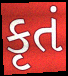
કૃતં